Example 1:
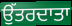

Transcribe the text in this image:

ਉੱਤਰਦਾਤਾ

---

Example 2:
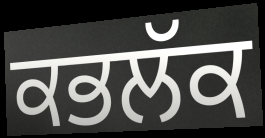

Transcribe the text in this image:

ਕਭਲੱਕ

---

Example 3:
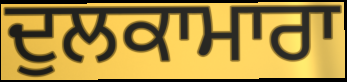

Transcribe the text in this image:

ਦੁਲਕਾਮਾਰਾ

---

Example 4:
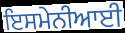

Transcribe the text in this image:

ਇਸਮੇਨੀਆਈ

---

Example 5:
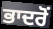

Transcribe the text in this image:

ਭਾਦਰੋਂ